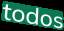
todos